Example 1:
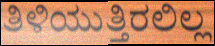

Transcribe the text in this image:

ತಿಳಿಯುತ್ತಿರಲಿಲ್ಲ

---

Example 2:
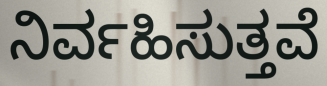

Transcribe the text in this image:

ನಿರ್ವಹಿಸುತ್ತವೆ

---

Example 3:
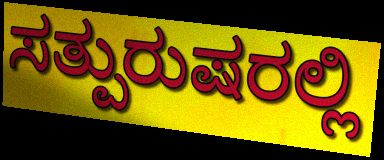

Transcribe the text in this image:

ಸತ್ಪುರುಷರಲ್ಲಿ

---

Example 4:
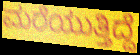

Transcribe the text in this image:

ಮರೆಯುತ್ತಿದ್ದೆ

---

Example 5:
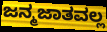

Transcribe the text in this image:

ಜನ್ಮಜಾತವಲ್ಲ